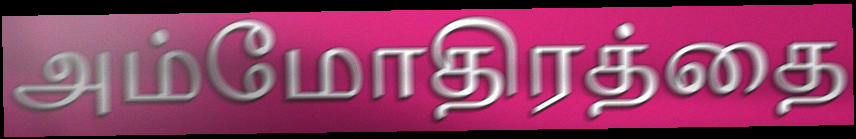
அம்மோதிரத்தை